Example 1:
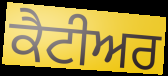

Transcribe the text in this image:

ਕੈਟੀਅਰ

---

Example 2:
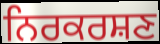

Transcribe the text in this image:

ਨਿਰਕਰਸ਼ਣ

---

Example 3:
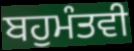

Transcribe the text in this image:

ਬਹੁਮੰਤਵੀ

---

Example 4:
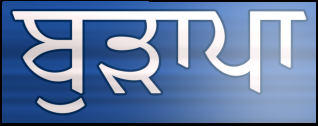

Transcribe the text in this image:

ਬੁੜਾਪਾ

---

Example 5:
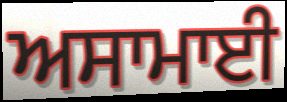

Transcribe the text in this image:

ਅਸਾਮਾਈ